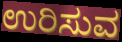
ಉರಿಸುವ